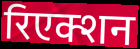
रिएक्शन